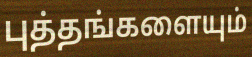
புத்தங்களையும்